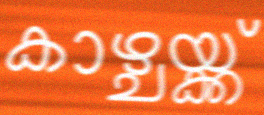
കാഴ്ചയ്ക്ക്